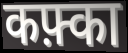
कफ़्का